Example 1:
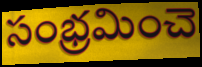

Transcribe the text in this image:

సంభ్రమించె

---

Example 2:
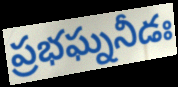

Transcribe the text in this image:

ప్రభఘ్ననీడః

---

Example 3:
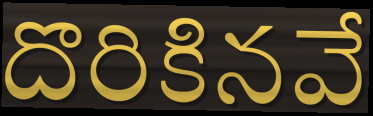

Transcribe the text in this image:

దొరికినవే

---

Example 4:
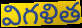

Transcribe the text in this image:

విగళిత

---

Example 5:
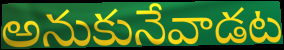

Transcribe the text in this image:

అనుకునేవాడట